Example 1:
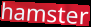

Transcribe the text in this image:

hamster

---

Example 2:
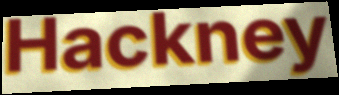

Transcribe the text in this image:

Hackney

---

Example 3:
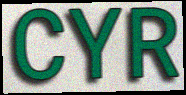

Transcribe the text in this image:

CYR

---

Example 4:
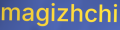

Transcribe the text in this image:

magizhchi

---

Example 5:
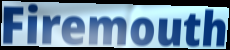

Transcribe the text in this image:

Firemouth